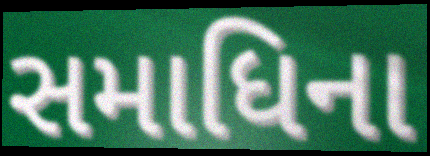
સમાધિના